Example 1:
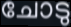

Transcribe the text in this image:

ചോടു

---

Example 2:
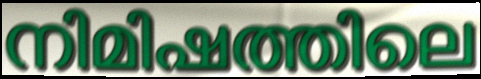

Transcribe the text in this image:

നിമിഷത്തിലെ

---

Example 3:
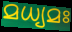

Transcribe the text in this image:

മധ്യമഃ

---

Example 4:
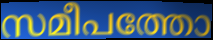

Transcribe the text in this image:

സമീപത്തോ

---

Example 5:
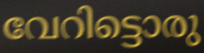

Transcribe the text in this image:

വേറിട്ടൊരു